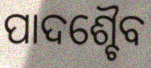
ପାଦଶ୍ଚୈବ